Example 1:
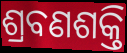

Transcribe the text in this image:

ଶ୍ରବଣଶକ୍ତି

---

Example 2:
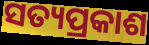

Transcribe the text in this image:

ସତ୍ୟପ୍ରକାଶ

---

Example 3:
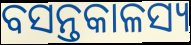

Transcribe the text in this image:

ବସନ୍ତକାଳସ୍ୟ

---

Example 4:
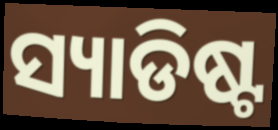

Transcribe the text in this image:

ସ୍ୟାଡିଷ୍ଟ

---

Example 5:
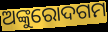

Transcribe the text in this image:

ଅଙ୍କୁରୋଦଗମ